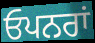
ਓਪਨਰਾਂ